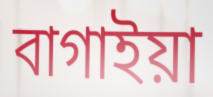
বাগাইয়া